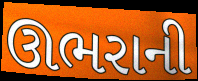
ઊભરાની